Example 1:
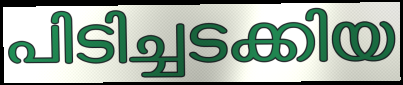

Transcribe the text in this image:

പിടിച്ചടക്കിയ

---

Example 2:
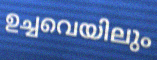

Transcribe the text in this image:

ഉച്ചവെയിലും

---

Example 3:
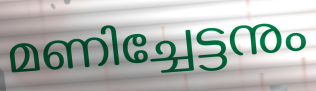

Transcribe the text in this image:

മണിച്ചേട്ടനും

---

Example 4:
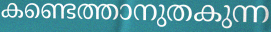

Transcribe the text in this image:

കണ്ടെത്താനുതകുന്ന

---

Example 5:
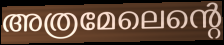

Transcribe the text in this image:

അത്രമേലെന്റെ